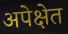
अपेक्षेत